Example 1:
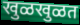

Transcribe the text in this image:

खुळखुळत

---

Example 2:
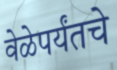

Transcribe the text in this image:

वेळेपर्यंतचे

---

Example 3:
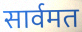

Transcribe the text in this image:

सार्वमत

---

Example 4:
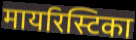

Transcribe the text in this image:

मायरिस्टिका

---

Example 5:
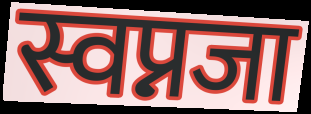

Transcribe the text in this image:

स्वप्नजा